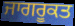
ਜਾਗਰੂਕਤ